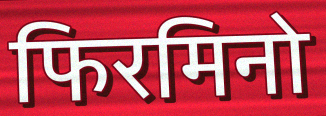
फिरमिनो